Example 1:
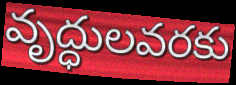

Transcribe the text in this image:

వృద్ధులవరకు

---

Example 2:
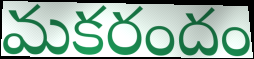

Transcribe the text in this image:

మకరందం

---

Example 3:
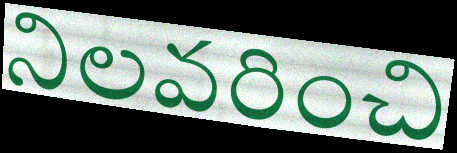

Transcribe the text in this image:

నిలవరించి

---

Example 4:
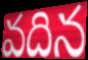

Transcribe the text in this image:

వదిన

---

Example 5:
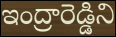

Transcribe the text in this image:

ఇంద్రారెడ్డిని